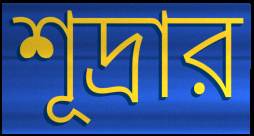
শূদ্রার